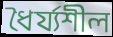
ধৈর্য্যশীল